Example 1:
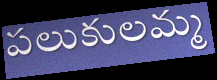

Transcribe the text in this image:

పలుకులమ్మ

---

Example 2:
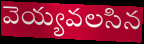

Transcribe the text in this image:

వెయ్యవలసిన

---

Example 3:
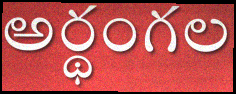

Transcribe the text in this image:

అర్థంగల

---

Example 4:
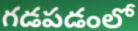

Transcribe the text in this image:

గడపడంలో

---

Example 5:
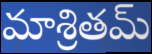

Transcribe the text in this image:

మాశ్రితమ్